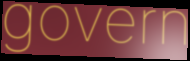
govern